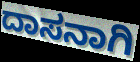
ದಾಸನಾಗಿ